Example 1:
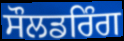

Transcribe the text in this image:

ਸੌਲਡਰਿੰਗ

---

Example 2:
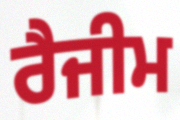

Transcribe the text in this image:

ਰੈਜੀਮ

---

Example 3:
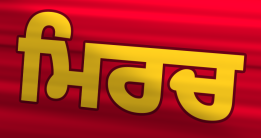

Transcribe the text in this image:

ਮਿਰਚ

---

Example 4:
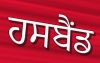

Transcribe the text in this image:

ਹਸਬੈਂਡ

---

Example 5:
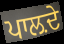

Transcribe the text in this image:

ਪਾਲ਼ਦੇ